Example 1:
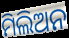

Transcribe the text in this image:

ମିଲିଅନ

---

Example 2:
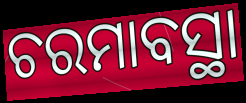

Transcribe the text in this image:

ଚରମାବସ୍ଥା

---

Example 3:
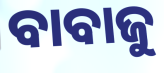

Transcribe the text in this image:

ବାବାଜୁ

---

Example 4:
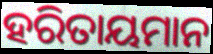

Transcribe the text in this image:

ହରିତାୟମାନ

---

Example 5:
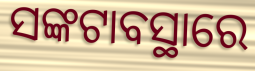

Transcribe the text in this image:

ସଙ୍କଟାବସ୍ଥାରେ